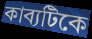
কাব্যটিকে